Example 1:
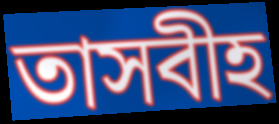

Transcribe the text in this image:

তাসবীহ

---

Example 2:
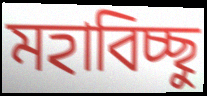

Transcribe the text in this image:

মহাবিচ্ছু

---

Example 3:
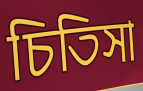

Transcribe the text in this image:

চিতিসা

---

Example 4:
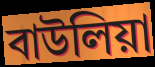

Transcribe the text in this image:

বাউলিয়া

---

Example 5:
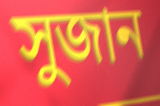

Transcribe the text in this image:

সুজান